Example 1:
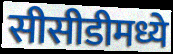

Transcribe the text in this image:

सीसीडीमध्ये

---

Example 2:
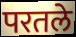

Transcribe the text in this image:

परतले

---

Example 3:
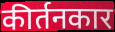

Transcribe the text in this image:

कीर्तनकार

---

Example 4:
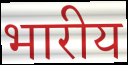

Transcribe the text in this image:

भारीय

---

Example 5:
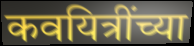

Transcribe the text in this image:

कवयित्रींच्या